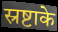
स्रष्टाके